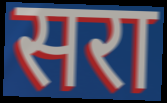
सरा